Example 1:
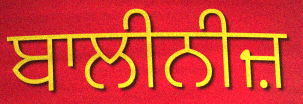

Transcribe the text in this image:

ਬਾਲੀਨੀਜ਼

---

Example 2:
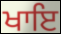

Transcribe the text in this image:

ਖਾਇ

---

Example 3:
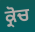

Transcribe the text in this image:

ਕ੍ਰੋਚ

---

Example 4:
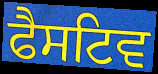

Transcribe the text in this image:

ਫੈਸਟਿਵ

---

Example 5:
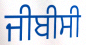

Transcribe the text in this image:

ਜੀਬੀਸੀ